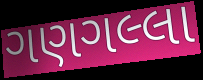
ગણગલ્લા